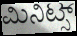
ಮಿನಿಟ್ಸ್